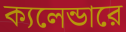
ক্যলেন্ডারে